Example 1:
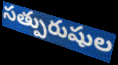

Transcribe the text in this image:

సత్పురుషుల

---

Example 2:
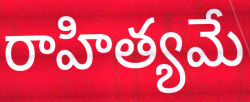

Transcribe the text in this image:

రాహిత్యమే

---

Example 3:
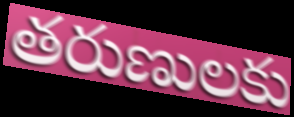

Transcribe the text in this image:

తరుణులకు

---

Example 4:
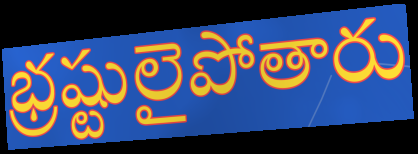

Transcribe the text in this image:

భ్రష్టులైపోతారు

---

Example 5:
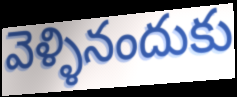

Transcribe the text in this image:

వెళ్ళినందుకు